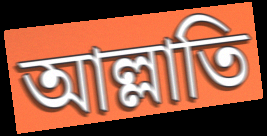
আল্লাতি